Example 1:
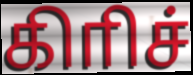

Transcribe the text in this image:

கிரிச்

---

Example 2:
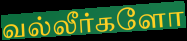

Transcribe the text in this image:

வல்லீர்களோ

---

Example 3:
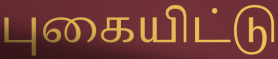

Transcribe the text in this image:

புகையிட்டு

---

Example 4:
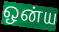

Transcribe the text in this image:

ஒன்ய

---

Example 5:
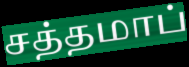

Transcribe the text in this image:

சத்தமாப்